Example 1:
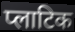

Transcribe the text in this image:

प्लाटिक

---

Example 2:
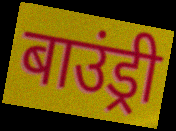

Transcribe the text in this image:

बाउंड्री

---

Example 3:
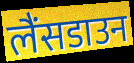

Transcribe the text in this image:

लैंसडाउन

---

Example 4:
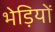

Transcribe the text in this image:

भेड़ियों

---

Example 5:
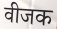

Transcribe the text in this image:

वीजक